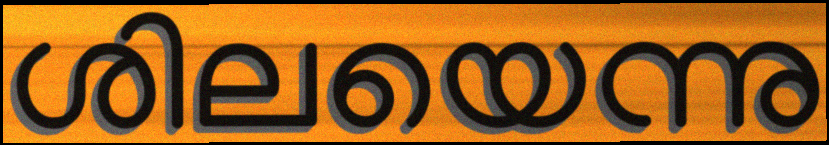
ശിലയെന്നു